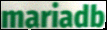
mariadb